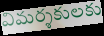
విమర్శకులకు